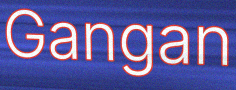
Gangan